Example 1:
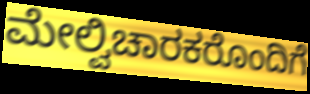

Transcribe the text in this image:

ಮೇಲ್ವಿಚಾರಕರೊಂದಿಗೆ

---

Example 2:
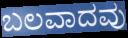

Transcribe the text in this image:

ಬಲವಾದವು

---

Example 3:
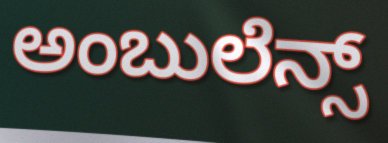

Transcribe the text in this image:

ಅಂಬುಲೆನ್ಸ್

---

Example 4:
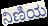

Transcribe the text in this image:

ನಿಣಿಯ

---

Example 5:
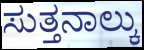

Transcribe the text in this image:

ಸುತ್ತನಾಲ್ಕು